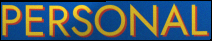
PERSONAL